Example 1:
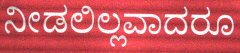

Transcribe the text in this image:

ನೀಡಲಿಲ್ಲವಾದರೂ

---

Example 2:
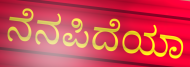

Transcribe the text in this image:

ನೆನಪಿದೆಯಾ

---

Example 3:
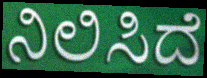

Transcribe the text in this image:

ನಿಲಿಸಿದೆ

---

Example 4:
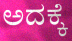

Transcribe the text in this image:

ಅದಕ್ಕೆ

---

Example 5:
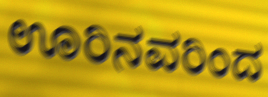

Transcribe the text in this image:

ಊರಿನವರಿಂದ